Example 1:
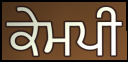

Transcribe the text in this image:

ਕੇਮਪੀ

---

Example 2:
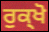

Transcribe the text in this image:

ਰੁਕ੍ਖੋ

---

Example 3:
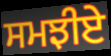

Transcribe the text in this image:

ਸਮਝੀਏ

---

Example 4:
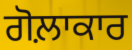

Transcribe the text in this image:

ਗੋਲ਼ਾਕਾਰ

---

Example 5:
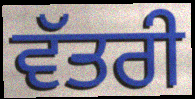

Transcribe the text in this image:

ਵੱਤਰੀ